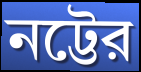
নট্টের